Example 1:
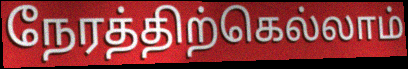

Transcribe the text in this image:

நேரத்திற்கெல்லாம்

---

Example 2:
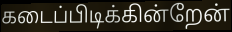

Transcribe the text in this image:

கடைப்பிடிக்கின்றேன்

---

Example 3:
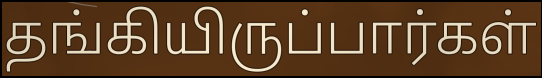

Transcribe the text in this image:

தங்கியிருப்பார்கள்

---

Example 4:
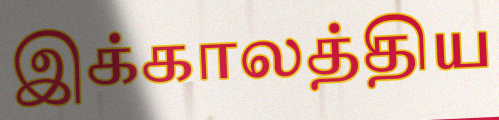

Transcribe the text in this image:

இக்காலத்திய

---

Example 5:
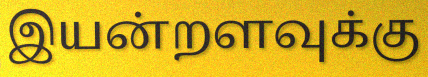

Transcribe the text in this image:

இயன்றளவுக்கு